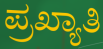
ಪ್ರಖ್ಯಾತಿ